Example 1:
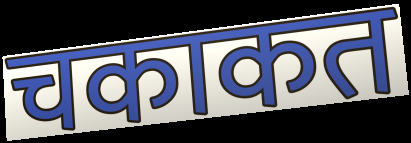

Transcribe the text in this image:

चकाकत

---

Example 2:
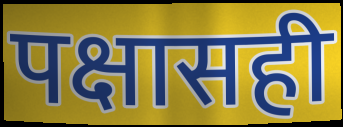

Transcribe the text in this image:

पक्षासही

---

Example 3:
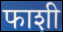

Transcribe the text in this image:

फाशी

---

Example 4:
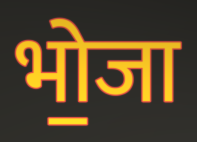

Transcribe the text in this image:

भो॒जा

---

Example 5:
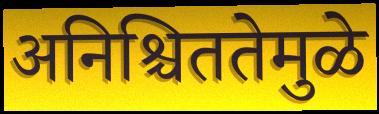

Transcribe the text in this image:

अनिश्चिततेमुळे